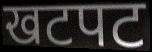
खटपट